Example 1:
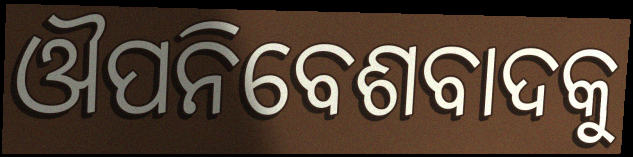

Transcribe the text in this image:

ଔପନିବେଶବାଦକୁ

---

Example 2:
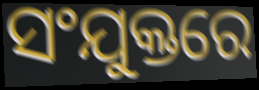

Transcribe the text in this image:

ସଂଯୁକ୍ତରେ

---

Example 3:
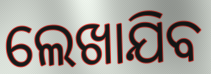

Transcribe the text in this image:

ଲେଖାଯିବ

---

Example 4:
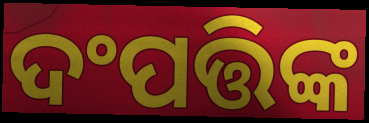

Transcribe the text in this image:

ଦଂପତ୍ତିଙ୍କ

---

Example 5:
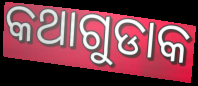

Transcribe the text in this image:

କଥାଗୁଡାକ